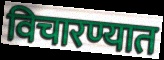
विचारण्यात